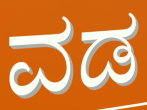
ವಡ